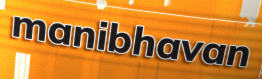
manibhavan